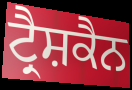
ਟ੍ਰੈਸ਼ਕੈਨ